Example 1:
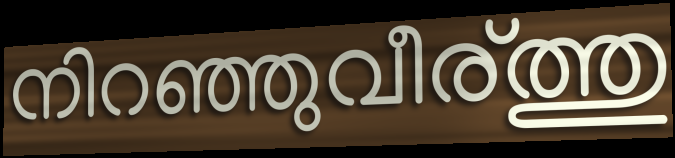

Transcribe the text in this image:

നിറഞ്ഞുവീര്ത്തു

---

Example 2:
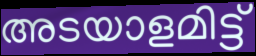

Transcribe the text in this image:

അടയാളമിട്ട്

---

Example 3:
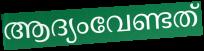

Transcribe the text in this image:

ആദ്യംവേണ്ടത്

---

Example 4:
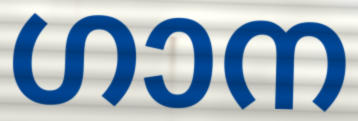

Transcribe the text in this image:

ഗാന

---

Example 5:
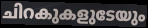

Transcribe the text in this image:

ചിറകുകളുടേയും